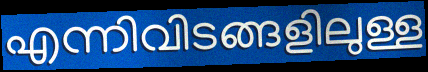
എന്നിവിടങ്ങളിലുള്ള